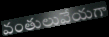
వంతులువేయగా